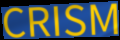
CRISM